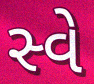
સ્વે